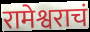
रामेश्वराचं